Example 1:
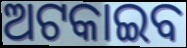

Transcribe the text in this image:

ଅଟକାଇବ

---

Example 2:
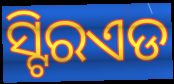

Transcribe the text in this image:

ସ୍ଟିରଏଡ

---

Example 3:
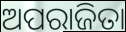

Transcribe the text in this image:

ଅପରାଜିତା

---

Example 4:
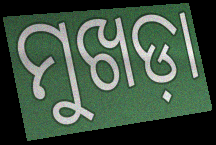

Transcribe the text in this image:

ମୁଖଡ଼ା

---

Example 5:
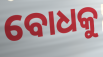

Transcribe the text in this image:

ବୋଧକୁ